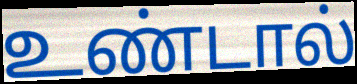
உண்டால்